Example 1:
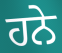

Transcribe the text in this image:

ਹਨੇ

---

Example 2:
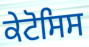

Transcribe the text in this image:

ਕੇਟੋਸਿਸ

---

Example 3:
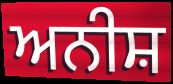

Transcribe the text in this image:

ਅਨੀਸ਼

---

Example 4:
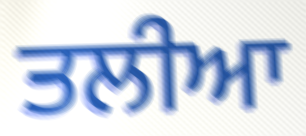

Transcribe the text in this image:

ਤਲੀਆ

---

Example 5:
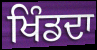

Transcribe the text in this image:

ਖਿੰਡਦਾ